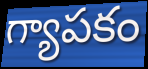
గ్యాపకం